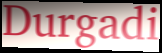
Durgadi